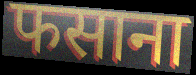
फसाना